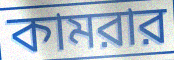
কামরার